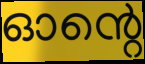
ഓന്റെ